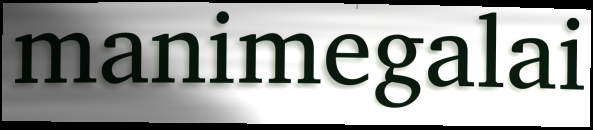
manimegalai